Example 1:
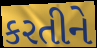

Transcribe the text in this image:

કરતીને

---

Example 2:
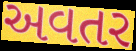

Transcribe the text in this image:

અવતર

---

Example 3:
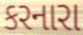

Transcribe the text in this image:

કરનારા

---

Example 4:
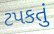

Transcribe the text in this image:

ટપકતું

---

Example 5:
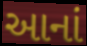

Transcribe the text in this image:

આનાં